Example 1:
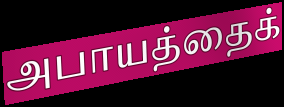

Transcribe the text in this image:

அபாயத்தைக்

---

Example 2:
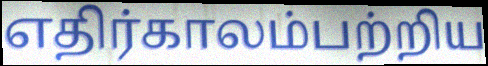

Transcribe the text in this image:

எதிர்காலம்பற்றிய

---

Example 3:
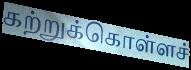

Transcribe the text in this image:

கற்றுக்கொள்ளச்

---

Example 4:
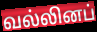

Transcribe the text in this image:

வல்லினப்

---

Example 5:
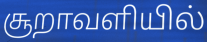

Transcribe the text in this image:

சூறாவளியில்